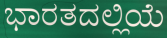
ಭಾರತದಲ್ಲಿಯೆ